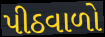
પીઠવાળો